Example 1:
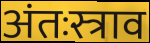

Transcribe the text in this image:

अंतःस्त्राव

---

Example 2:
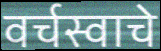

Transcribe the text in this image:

वर्चस्वाचे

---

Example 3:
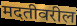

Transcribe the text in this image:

मदतीवरील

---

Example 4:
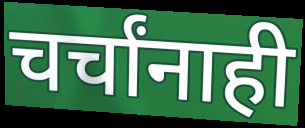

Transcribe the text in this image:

चर्चांनाही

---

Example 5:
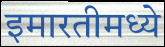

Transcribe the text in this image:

इमारतीमध्ये